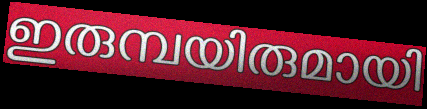
ഇരുമ്പയിരുമായി